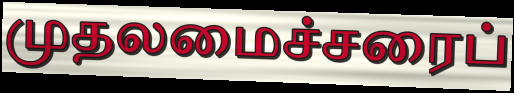
முதலமைச்சரைப்